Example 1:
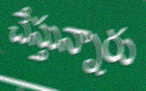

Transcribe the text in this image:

చేస్తున్నారు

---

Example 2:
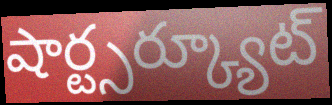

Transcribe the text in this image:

షార్ట్సర్క్యూట్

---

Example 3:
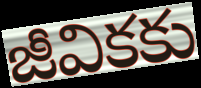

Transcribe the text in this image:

జీవికకు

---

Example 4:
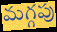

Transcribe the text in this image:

మగ్గపు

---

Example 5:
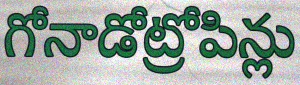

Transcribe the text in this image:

గోనాడోట్రోపిన్లు